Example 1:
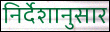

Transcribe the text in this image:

निर्देशानुसार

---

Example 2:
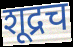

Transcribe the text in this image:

शूद्रच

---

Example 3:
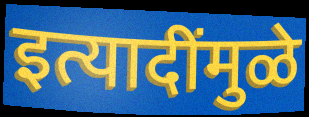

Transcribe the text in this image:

इत्यादींमुळे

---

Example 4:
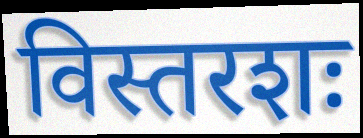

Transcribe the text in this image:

विस्तरशः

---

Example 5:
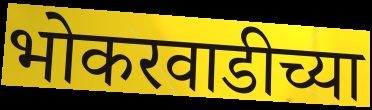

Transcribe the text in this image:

भोकरवाडीच्या